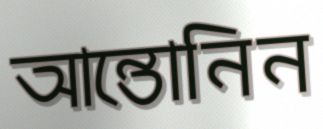
আন্তোনিন